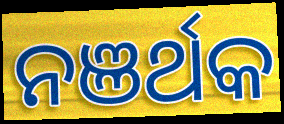
ନଞର୍ଥକ